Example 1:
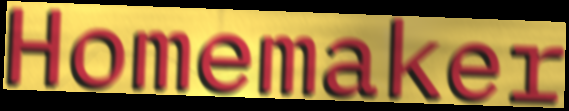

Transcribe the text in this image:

Homemaker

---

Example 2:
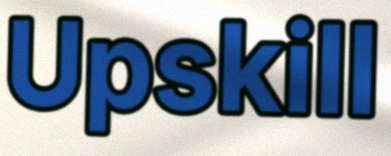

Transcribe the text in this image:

Upskill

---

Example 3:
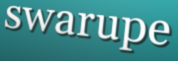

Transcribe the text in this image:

swarupe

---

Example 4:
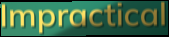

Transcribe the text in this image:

Impractical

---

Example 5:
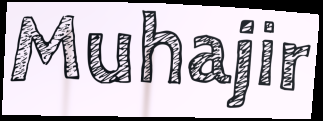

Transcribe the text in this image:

Muhajir